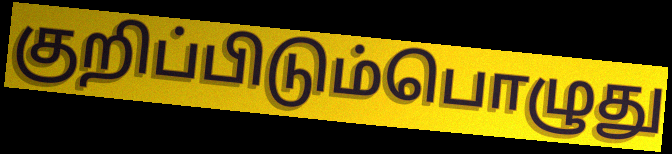
குறிப்பிடும்பொழுது